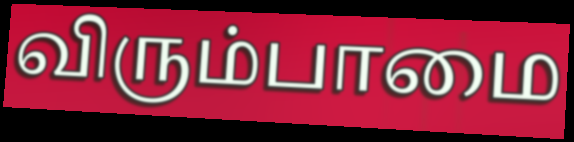
விரும்பாமை